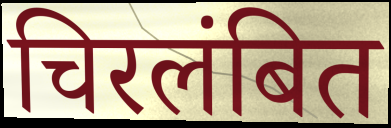
चिरलंबित